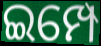
ଇମ୍ପେ